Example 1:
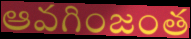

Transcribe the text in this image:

ఆవగింజంత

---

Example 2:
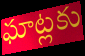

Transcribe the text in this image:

ఘాట్లకు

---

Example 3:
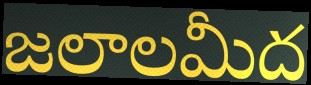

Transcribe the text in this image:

జలాలమీద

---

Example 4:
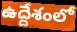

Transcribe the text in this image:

ఉద్దేశంలో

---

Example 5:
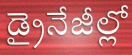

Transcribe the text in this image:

డ్రైనేజీల్లో